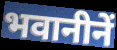
भवानीनें